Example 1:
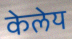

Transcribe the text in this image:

केलेय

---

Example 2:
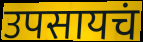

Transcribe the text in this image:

उपसायचं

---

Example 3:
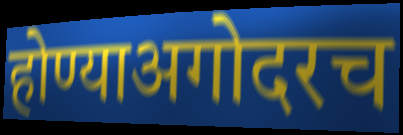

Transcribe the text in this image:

होण्याअगोदरच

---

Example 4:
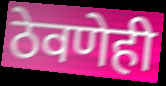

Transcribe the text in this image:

ठेवणेही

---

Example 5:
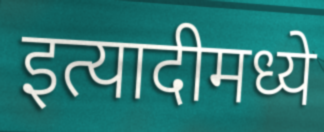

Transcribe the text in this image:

इत्यादीमध्ये